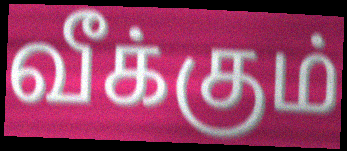
வீக்கும்